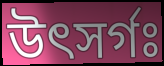
উৎসর্গঃ